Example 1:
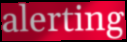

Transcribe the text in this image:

alerting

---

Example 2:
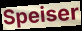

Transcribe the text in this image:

Speiser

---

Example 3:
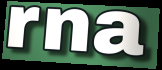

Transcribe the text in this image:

rna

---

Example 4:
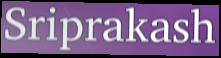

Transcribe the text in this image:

Sriprakash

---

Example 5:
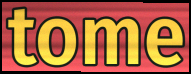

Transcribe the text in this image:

tome